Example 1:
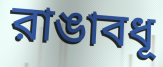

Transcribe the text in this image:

রাঙাবধূ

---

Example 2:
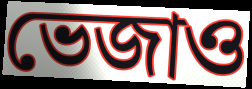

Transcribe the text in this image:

ভেজাও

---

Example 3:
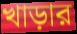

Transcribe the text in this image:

খাড়ার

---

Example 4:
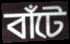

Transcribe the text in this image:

বাঁটে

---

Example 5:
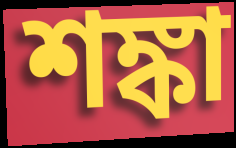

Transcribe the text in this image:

শঙ্কা